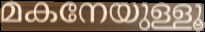
മകനേയുള്ളൂ